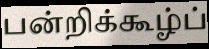
பன்றிக்கூழ்ப்